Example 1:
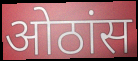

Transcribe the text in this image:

ओठांस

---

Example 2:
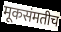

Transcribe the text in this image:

मूकसंमतीच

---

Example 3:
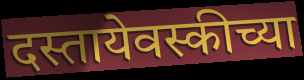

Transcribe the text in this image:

दस्तायेवस्कीच्या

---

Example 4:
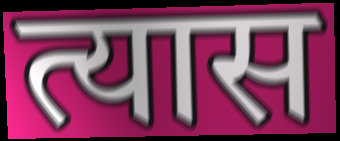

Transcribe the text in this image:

त्‍यास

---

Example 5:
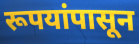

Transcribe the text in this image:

रूपयांपासून